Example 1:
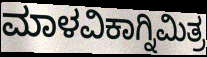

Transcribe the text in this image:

ಮಾಳವಿಕಾಗ್ನಿಮಿತ್ರ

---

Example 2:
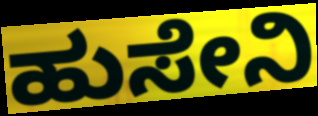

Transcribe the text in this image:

ಹುಸೇನಿ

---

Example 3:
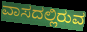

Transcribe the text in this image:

ವಾಸದಲ್ಲಿರುವ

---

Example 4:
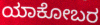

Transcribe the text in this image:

ಯಾಕೋಬರ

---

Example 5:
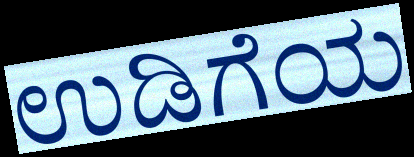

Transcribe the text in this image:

ಉಡಿಗೆಯ